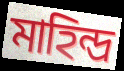
মাহিন্দ্র